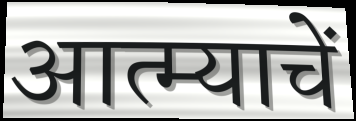
आत्म्याचें